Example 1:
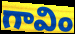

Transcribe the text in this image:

గావిం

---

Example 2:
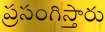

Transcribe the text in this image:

ప్రసంగిస్తారు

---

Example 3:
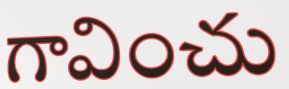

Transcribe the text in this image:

గావించు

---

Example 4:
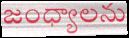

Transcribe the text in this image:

జంధ్యాలను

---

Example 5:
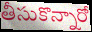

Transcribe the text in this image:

తీసుకొన్నారో